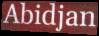
Abidjan